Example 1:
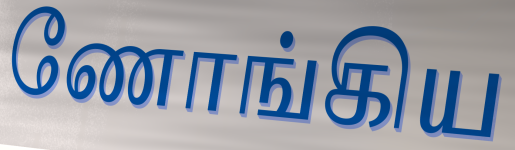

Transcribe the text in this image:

ணோங்கிய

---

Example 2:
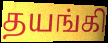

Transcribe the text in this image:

தயங்கி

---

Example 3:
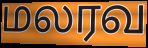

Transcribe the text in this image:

மலரவ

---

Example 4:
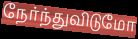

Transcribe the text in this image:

நேர்ந்துவிடுமோ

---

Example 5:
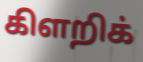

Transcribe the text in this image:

கிளறிக்